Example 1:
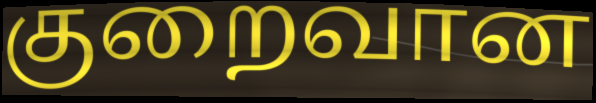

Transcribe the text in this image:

குறைவான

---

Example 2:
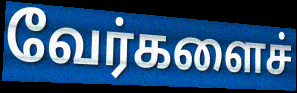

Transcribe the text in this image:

வேர்களைச்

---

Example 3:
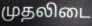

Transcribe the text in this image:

முதலிடை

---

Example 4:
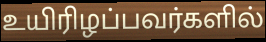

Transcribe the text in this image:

உயிரிழப்பவர்களில்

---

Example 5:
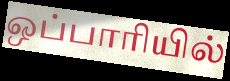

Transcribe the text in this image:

ஒப்பாரியில்